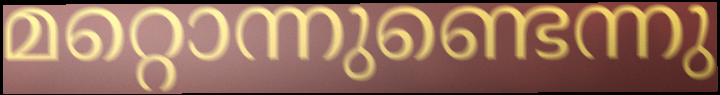
മറ്റൊന്നുണ്ടെന്നു